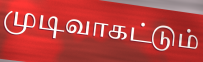
முடிவாகட்டும்